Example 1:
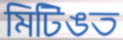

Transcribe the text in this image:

মিটিঙত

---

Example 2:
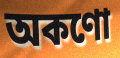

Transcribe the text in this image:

অকণো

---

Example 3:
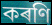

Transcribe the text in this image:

কৰণি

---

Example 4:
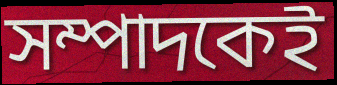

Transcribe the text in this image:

সম্পাদকেই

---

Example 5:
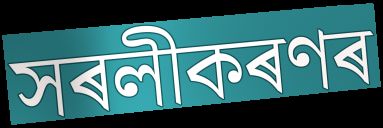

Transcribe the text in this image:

সৰলীকৰণৰ